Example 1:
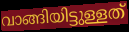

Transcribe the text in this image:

വാങ്ങിയിട്ടുള്ളത്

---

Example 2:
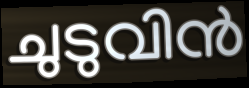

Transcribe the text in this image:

ചുടുവിൻ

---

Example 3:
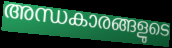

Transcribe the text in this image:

അന്ധകാരങ്ങളുടെ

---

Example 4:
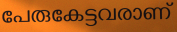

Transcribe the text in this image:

പേരുകേട്ടവരാണ്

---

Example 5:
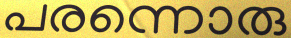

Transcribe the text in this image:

പരന്നൊരു